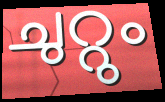
ചുറ്റും